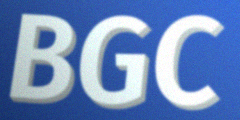
BGC